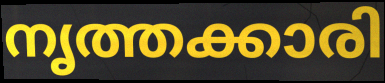
നൃത്തക്കാരി